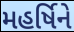
મહર્ષિને